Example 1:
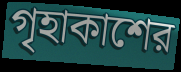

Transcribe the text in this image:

গৃহাকাশের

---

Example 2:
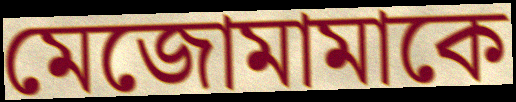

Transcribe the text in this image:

মেজোমামাকে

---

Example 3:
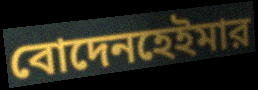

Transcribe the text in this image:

বোদেনহেইমার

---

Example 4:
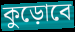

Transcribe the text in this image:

কুড়োবে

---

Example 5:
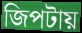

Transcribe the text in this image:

জিপটায়